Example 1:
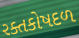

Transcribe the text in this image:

રક્તકોષદળ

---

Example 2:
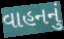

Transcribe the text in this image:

વાહનનું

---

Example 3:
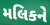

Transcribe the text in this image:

મલિકને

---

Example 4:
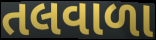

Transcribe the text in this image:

તલવાળા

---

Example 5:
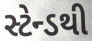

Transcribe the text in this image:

સ્ટેન્ડથી